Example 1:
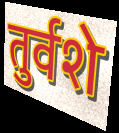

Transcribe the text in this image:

तुर्वशे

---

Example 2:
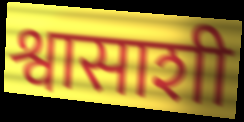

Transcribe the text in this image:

श्वासाशी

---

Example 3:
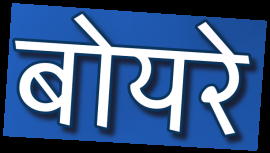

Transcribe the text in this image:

बोयरे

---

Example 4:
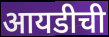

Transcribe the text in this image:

आयडीची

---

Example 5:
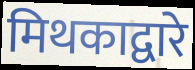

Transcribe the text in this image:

मिथकाद्वारे